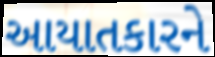
આયાતકારને